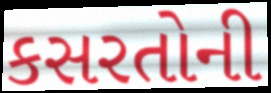
કસરતોની